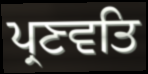
ਪ੍ਰਣਵਤਿ